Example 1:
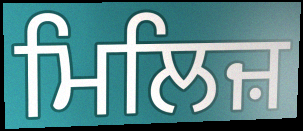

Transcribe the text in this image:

ਮਿਲਿਜ਼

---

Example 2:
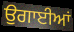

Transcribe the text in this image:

ਉਗਾਈਆਂ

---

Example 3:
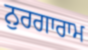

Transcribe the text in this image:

ਨੁਰਗਾਰਾਮ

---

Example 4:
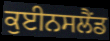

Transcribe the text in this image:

ਕੁਈਨਸਲੈਂਡ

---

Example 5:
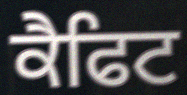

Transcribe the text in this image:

ਕੈਫਿਟ